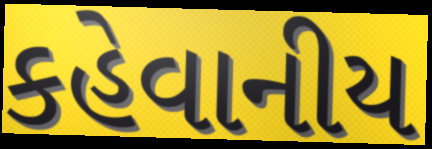
કહેવાનીય